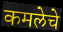
कमलेचे